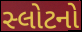
સ્લોટનો